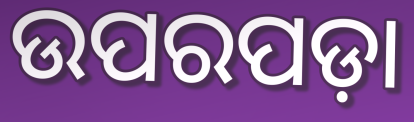
ଉପରପଡ଼ା